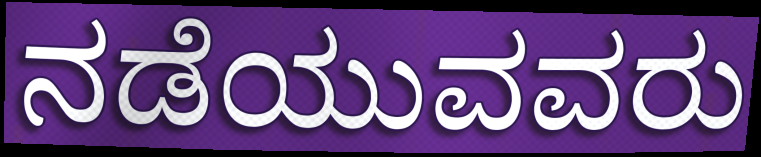
ನಡೆಯುವವರು